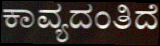
ಕಾವ್ಯದಂತಿದೆ